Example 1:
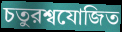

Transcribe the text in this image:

চতুরশ্বযোজিত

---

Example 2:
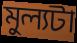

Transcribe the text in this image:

মুল্যটা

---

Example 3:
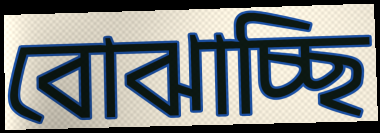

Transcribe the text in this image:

বোঝাচ্ছি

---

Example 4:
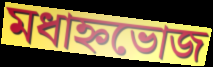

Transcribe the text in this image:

মধাহ্নভোজ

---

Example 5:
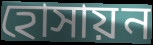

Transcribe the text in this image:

হোসায়ন